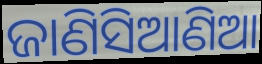
ଜାଣିସିଆଣିଆ